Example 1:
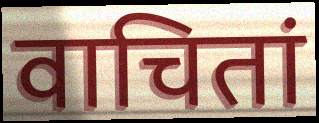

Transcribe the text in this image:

वाचितां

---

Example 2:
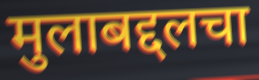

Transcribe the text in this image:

मुलाबद्दलचा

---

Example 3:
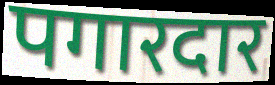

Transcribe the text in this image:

पगारदार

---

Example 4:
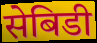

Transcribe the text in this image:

सेबिडी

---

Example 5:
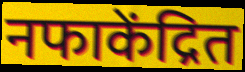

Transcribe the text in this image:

नफाकेंद्रित